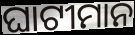
ଘାଟୀମାନ